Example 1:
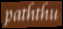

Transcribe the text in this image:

paththu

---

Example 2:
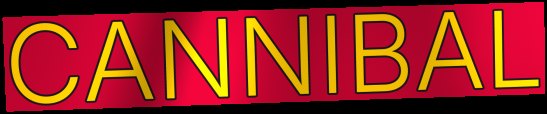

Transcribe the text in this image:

CANNIBAL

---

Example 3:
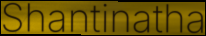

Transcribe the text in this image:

Shantinatha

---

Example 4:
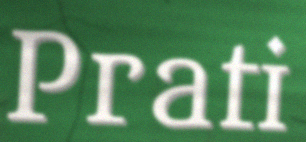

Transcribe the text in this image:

Prati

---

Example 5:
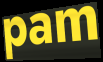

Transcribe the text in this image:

pam